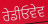
ਰੇਡੀਓਵੇਵ